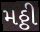
મઠ્ઠી